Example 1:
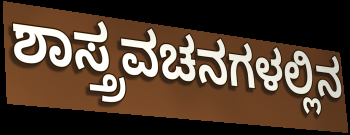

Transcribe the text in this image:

ಶಾಸ್ತ್ರವಚನಗಳಲ್ಲಿನ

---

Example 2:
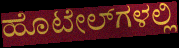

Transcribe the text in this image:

ಹೊಟೇಲ್‌ಗಳಲ್ಲಿ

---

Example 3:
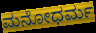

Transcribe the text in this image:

ಮನೋಧರ್ಮ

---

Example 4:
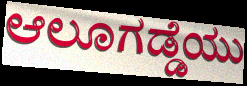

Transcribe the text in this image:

ಆಲೂಗಡ್ಡೆಯು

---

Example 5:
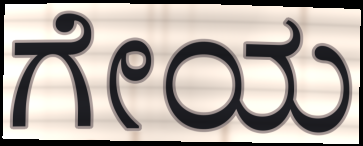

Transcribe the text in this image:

ಗೇಯ